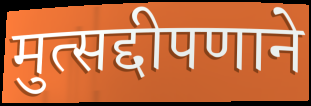
मुत्सद्दीपणाने